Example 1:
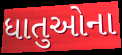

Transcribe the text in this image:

ધાતુઓના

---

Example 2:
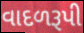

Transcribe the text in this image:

વાદળરૂપી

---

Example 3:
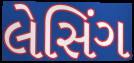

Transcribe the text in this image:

લેસિંગ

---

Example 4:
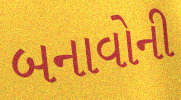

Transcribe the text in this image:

બનાવોની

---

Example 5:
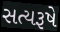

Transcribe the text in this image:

સત્યરૂષે